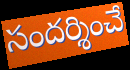
సందర్శించే